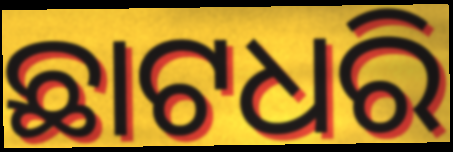
ଛାଟଧରି